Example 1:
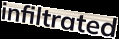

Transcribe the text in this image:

infiltrated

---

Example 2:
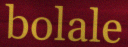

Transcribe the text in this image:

bolale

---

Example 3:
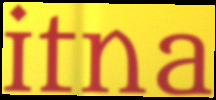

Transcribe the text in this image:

itna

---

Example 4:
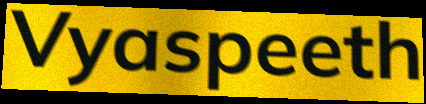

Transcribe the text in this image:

Vyaspeeth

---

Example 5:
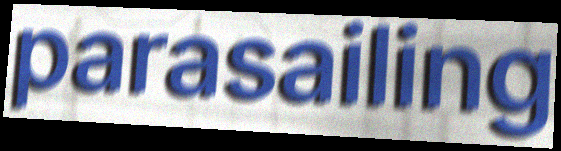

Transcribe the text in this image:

parasailing